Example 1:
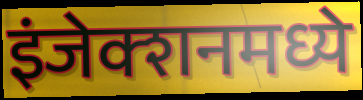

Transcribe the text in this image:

इंजेक्शनमध्ये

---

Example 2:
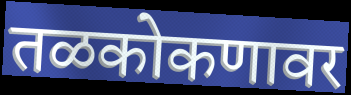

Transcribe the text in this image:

तळकोकणावर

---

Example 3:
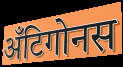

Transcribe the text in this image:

अँटिगोनस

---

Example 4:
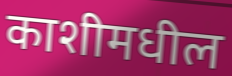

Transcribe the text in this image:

काशीमधील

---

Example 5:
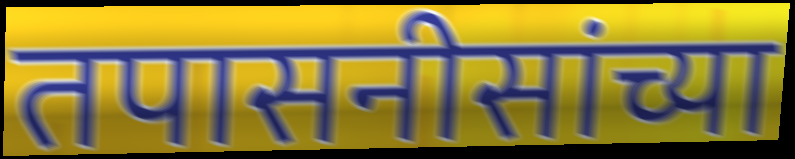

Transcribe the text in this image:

तपासनीसांच्या